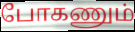
போகணும்